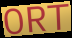
ORT